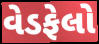
વેડફેલો